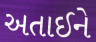
અતાઈને